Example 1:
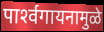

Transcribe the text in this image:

पार्श्वगायनामुळे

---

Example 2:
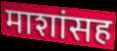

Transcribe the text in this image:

माशांसह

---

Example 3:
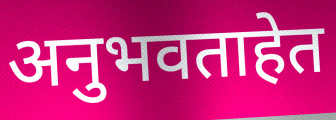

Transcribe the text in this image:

अनुभवताहेत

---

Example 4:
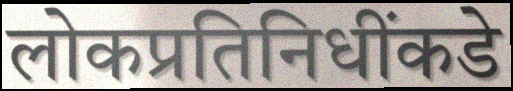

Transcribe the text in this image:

लोकप्रतिनिधींकडे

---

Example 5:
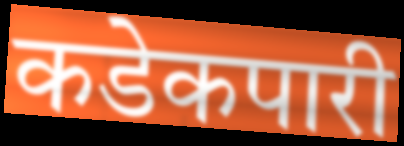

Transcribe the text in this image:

कडेकपारी